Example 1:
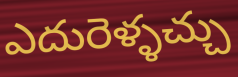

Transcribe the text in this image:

ఎదురెళ్ళచ్చు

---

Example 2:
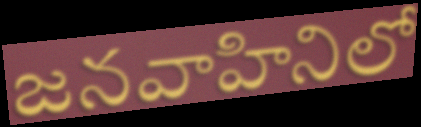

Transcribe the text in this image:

జనవాహినిలో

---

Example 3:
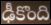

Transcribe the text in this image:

ఢీకొంది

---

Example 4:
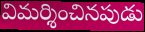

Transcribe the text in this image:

విమర్శించినపుడు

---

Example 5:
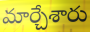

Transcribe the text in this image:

మార్చేశారు